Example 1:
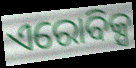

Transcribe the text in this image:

ଏରୋବିକ୍ସ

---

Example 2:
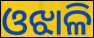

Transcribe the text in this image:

ଓଝାଳି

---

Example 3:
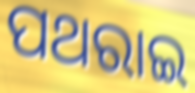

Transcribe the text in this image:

ପଥରାଇ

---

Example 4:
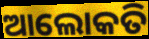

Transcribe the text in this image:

ଆଲୋକତି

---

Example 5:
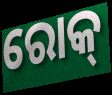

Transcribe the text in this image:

ରୋକ୍